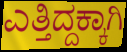
ಎತ್ತಿದ್ದಕ್ಕಾಗಿ